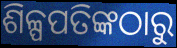
ଶିଳ୍ପପତିଙ୍କଠାରୁ